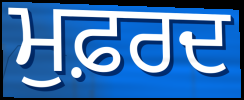
ਮੁਫ਼ਰਦ